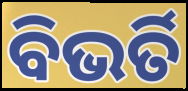
ବିଭର୍ତି